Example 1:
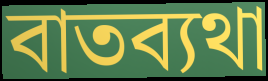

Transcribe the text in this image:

বাতব্যথা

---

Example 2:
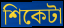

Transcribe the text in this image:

শিকেটা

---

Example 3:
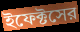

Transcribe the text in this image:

ইফেক্টসের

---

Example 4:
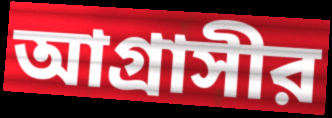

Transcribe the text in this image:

আগ্রাসীর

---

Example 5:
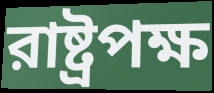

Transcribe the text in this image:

রাষ্ট্রপক্ষ